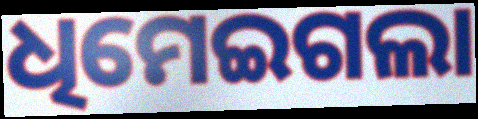
ଧିମେଇଗଲା